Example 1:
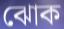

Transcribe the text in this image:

ঝোক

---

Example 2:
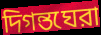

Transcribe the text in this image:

দিগন্তঘেরা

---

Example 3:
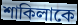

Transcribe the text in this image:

শাকিলাকে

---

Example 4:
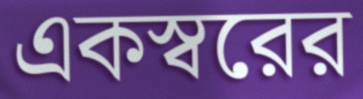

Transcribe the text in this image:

একস্বরের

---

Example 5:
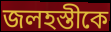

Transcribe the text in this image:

জলহস্তীকে